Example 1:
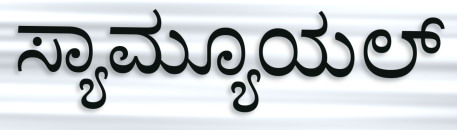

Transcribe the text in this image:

ಸ್ಯಾಮ್ಯೂಯಲ್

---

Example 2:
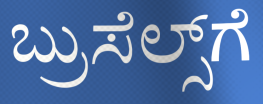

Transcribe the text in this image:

ಬ್ರುಸೆಲ್ಸ್‌ಗೆ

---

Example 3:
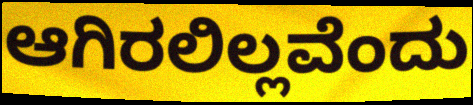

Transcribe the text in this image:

ಆಗಿರಲಿಲ್ಲವೆಂದು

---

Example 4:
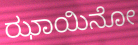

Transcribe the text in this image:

ಝಾಯಿನೋ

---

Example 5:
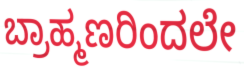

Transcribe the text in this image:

ಬ್ರಾಹ್ಮಣರಿಂದಲೇ